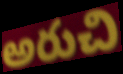
అరుచి